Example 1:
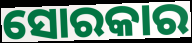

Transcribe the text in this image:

ସୋରକାର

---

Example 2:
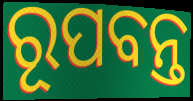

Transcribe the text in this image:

ରୂପବନ୍ତ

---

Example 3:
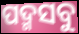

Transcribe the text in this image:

ପଦ୍ମସବୁ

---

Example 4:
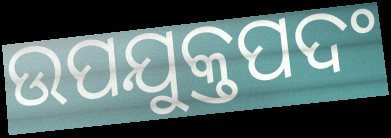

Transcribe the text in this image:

ଉପଯୁକ୍ତପଦଂ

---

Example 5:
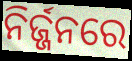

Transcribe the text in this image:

ନିର୍ଜ୍ଜନରେ